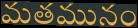
మతమునం